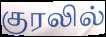
குரலில்